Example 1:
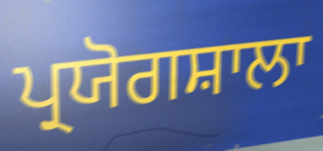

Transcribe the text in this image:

ਪ੍ਰਯੋਗਸ਼ਾਲਾ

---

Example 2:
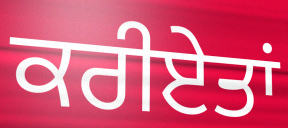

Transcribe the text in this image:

ਕਰੀਏਤਾਂ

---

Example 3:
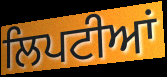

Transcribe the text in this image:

ਲਿਪਟੀਆਂ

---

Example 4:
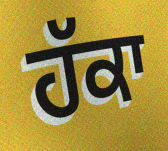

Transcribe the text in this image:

ਹੱਕਾ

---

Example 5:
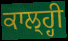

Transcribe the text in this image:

ਕਾਲ੍ਹ੍ਹੀ